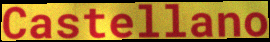
Castellano